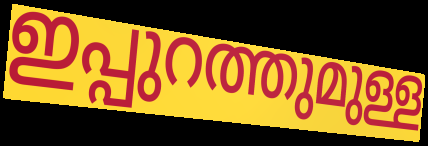
ഇപ്പുറത്തുമുള്ള